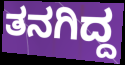
ತನಗಿದ್ದ